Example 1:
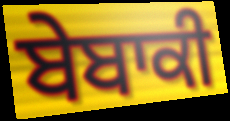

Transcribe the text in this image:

ਬੇਬਾਕੀ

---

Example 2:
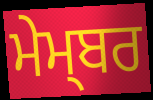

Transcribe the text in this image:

ਮੇਮ੍ਬਰ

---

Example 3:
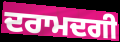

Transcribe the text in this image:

ਦਰਾਮਦਗੀ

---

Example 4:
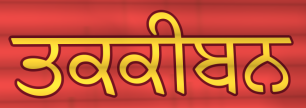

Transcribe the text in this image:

ਤਕਕੀਬਨ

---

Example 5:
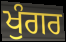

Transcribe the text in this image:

ਖੁੰਗਰ